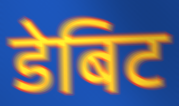
डेबिट